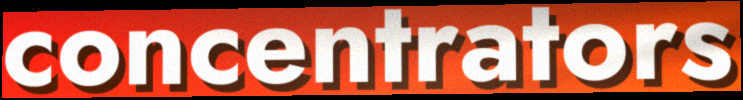
concentrators